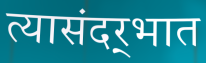
त्यासंदर्भात